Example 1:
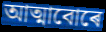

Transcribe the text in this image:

আত্মাবোৰে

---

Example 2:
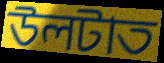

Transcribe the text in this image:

উলটাত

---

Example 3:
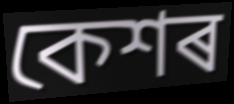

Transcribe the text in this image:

কেশৰ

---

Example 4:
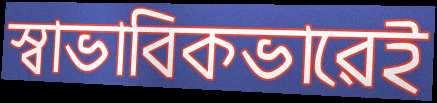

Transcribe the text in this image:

স্বাভাবিকভাৱেই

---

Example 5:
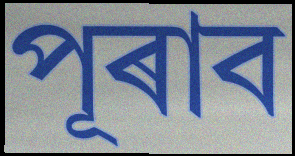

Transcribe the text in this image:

পূৰাব